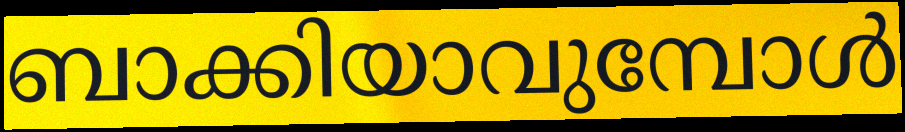
ബാക്കിയാവുമ്പോൾ